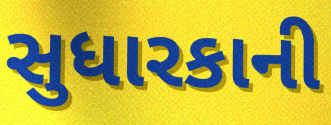
સુધારકાની